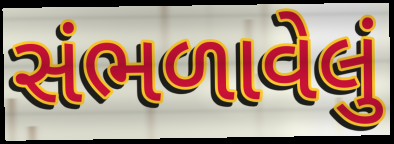
સંભળાવેલું